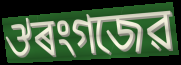
ঔৰংগজেৱ